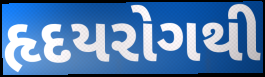
હૃદયરોગથી